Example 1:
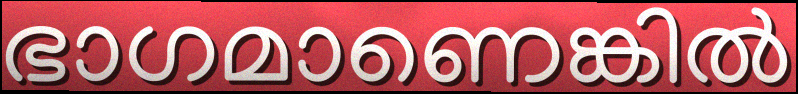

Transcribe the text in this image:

ഭാഗമാണെങ്കിൽ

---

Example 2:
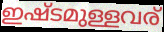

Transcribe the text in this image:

ഇഷ്ടമുള്ളവര്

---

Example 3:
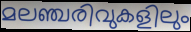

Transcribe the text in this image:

മലഞ്ചരിവുകളിലും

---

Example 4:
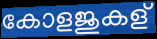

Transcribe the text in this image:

കോളജുകള്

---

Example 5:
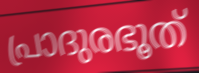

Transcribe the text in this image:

പ്രാദുരഭൂത്